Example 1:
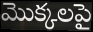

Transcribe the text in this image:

మొక్కలపై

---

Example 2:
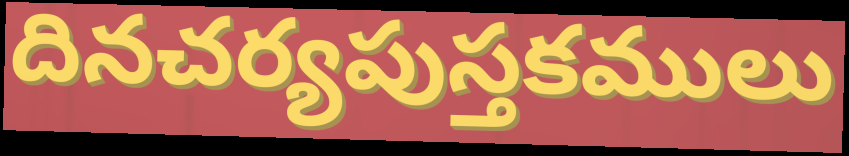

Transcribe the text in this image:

దినచర్యపుస్తకములు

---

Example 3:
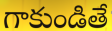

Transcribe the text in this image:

గాకుండితే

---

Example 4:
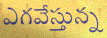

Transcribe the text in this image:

ఎగవేస్తున్న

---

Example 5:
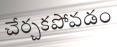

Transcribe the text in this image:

చేర్చకపోవడం